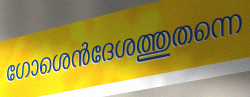
ഗോശെൻദേശത്തുതന്നെ